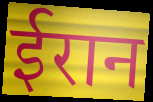
ईरान